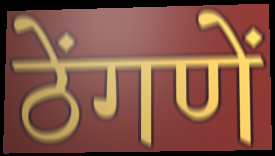
ठेंगणें